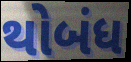
થોબંધ